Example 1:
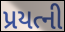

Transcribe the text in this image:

પ્રયત્ની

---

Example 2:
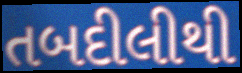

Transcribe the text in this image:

તબદીલીથી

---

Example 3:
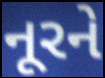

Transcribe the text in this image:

નૂરને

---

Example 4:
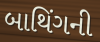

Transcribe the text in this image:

બાથિંગની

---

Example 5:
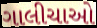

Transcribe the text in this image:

ગાલીચાઓ